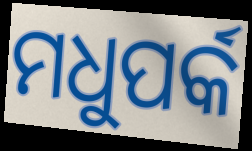
ମଧୁପର୍କ